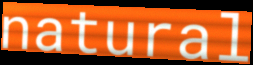
natural